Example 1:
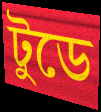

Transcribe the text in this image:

টুডে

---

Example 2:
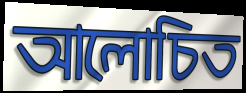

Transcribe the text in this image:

আলোচিত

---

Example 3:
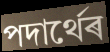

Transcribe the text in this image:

পদাৰ্থেৰ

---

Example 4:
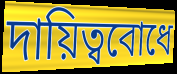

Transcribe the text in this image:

দায়িত্ববোধে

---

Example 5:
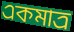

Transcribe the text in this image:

একমাত্ৰ